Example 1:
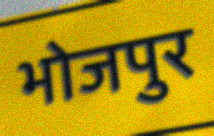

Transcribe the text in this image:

भोजपुर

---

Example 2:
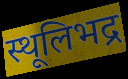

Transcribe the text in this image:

स्थूलिभद्र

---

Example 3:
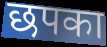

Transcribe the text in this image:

छपका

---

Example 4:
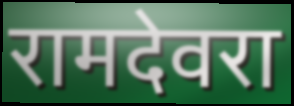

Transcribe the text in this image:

रामदेवरा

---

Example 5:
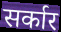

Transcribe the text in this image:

सर्कार